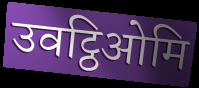
उवट्ठिओमि